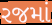
રજમાં